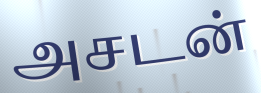
அசடன்